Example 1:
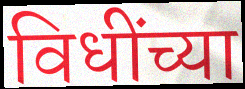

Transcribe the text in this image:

विधींच्या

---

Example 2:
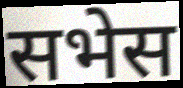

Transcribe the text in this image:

सभेस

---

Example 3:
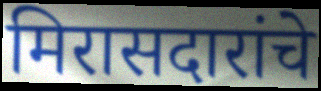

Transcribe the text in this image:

मिरासदारांचे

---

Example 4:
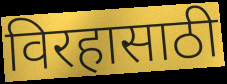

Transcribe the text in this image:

विरहासाठी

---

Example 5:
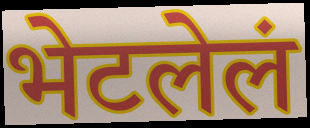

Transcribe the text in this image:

भेटलेलं